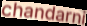
chandarni